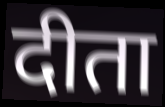
दीता